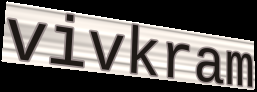
vivkram